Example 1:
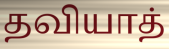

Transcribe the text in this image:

தவியாத்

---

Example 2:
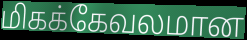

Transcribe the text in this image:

மிகக்கேவலமான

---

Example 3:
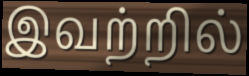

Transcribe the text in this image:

இவற்றில்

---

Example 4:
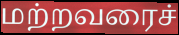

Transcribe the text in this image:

மற்றவரைச்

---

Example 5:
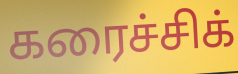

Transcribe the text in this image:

கரைச்சிக்